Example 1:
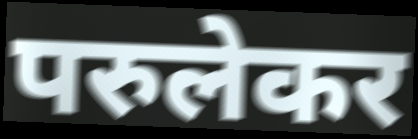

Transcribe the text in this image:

परुलेकर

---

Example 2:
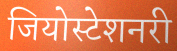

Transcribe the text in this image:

जियोस्टेशनरी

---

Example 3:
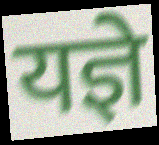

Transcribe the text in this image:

यज्ञे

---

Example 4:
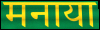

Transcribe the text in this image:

मनाया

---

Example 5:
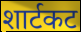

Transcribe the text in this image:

शार्टकट